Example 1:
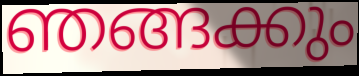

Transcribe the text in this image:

ഞങ്ങക്കും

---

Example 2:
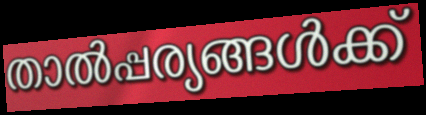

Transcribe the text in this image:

താൽപ്പര്യങ്ങൾക്ക്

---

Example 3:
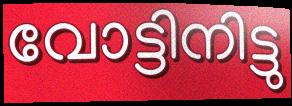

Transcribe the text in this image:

വോട്ടിനിട്ടു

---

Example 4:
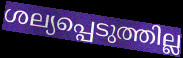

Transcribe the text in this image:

ശല്യപ്പെടുത്തില്ല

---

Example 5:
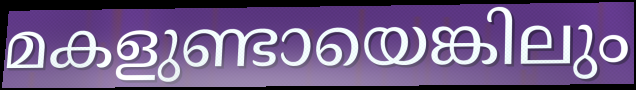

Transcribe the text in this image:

മകളുണ്ടായെങ്കിലും